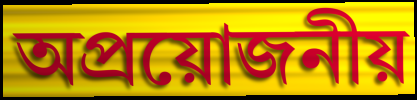
অপ্রয়োজনীয়